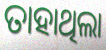
ତାହାଥିଲା